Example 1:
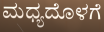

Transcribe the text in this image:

ಮಧ್ಯದೊಳಗೆ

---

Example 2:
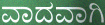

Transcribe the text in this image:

ವಾದವಾಗಿ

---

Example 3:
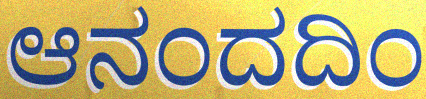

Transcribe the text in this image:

ಆನಂದದಿಂ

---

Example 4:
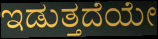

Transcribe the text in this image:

ಇಡುತ್ತದೆಯೇ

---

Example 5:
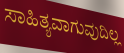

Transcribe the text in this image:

ಸಾಹಿತ್ಯವಾಗುವುದಿಲ್ಲ